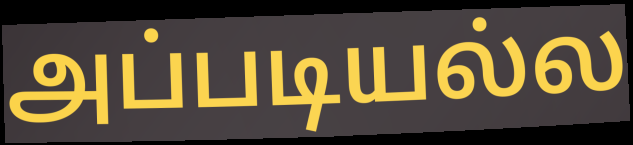
அப்படியல்ல